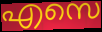
എസെ